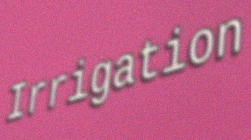
Irrigation